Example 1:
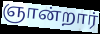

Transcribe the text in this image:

ஞான்றார்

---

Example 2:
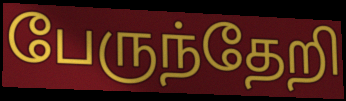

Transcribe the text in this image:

பேருந்தேறி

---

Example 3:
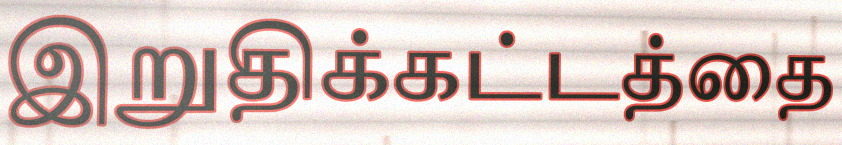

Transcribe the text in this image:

இறுதிக்கட்டத்தை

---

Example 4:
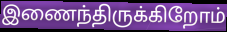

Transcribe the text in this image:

இணைந்திருக்கிறோம்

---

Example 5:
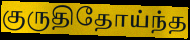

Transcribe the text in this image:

குருதிதோய்ந்த